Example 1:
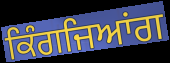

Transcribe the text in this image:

ਕਿੰਗਜਿਆਂਗ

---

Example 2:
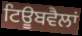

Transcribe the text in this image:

ਟਿਊਬਵੈਲਾਂ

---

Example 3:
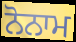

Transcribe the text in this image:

ਨੋਨਾਮ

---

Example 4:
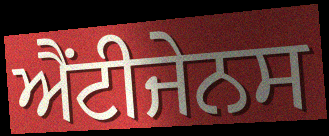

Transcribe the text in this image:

ਐਂਟੀਜੇਨਸ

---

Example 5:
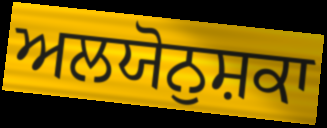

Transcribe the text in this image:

ਅਲਯੋਨੁਸ਼ਕਾ